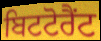
ਬਿਟਟੋਰੈਂਟ